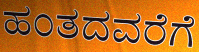
ಹಂತದವರೆಗೆ